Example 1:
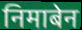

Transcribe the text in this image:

निमाबेन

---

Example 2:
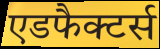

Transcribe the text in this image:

एडफैक्टर्स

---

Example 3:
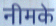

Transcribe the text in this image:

नीमके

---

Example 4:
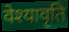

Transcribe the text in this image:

वेश्यावृति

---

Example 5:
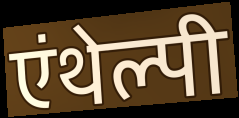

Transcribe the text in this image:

एंथेल्पी